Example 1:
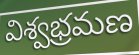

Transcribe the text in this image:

విశ్వభ్రమణ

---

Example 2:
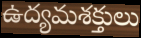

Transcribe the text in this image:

ఉద్యమశక్తులు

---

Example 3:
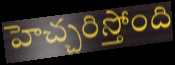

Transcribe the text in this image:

హెచ్చరిస్తోంది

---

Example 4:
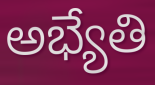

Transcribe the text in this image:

అభ్యేతి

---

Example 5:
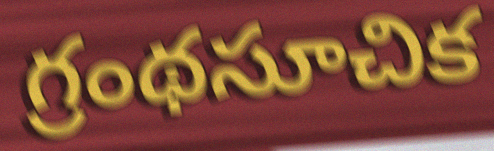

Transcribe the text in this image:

గ్రంథసూచిక